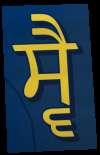
ਸ੍ਵੈ